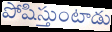
పోషిస్తుంటాడు